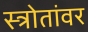
स्त्रोतांवर